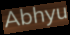
Abhyu